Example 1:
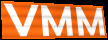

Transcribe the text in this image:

VMM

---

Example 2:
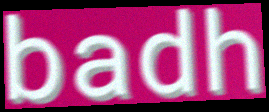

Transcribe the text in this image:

badh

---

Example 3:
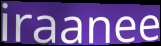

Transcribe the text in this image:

iraanee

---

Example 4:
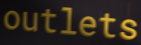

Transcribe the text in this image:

outlets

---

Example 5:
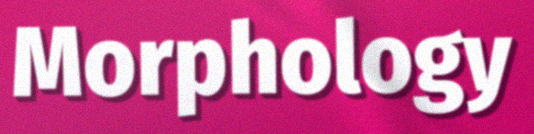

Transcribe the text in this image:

Morphology